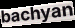
bachyan